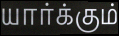
யார்க்கும்